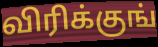
விரிக்குங்